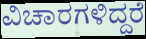
ವಿಚಾರಗಳಿದ್ದರೆ